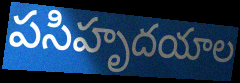
పసిహృదయాల